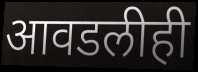
आवडलीही